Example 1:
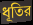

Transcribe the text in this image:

ধূতির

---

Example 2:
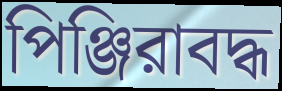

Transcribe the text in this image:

পিঞ্জিরাবদ্ধ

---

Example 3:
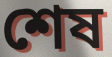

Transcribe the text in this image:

শেষ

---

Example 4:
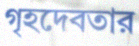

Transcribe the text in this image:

গৃহদেবতার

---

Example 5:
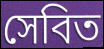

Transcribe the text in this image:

সেবিত